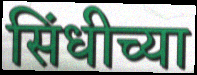
सिंधीच्या